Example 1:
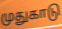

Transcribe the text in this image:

முதுகாடு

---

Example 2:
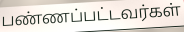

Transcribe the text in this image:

பண்ணப்பட்டவர்கள்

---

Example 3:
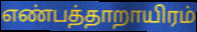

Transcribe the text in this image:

எண்பத்தாறாயிரம்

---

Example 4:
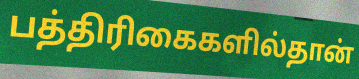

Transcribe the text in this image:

பத்திரிகைகளில்தான்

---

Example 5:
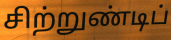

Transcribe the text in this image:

சிற்றுண்டிப்